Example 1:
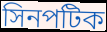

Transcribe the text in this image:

সিনপটিক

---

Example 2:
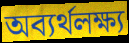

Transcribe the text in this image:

অব্যর্থলক্ষ্য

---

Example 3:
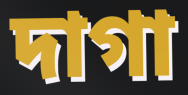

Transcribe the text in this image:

দাগা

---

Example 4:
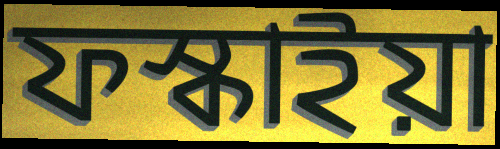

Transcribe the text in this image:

ফস্কাইয়া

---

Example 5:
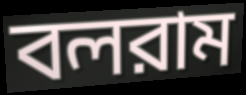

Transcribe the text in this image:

বলরাম